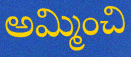
అమ్మించి